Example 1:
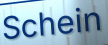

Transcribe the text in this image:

Schein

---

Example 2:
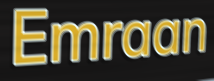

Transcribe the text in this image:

Emraan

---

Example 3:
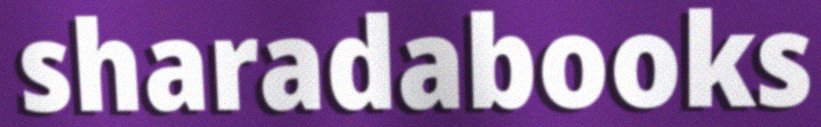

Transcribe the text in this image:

sharadabooks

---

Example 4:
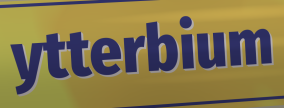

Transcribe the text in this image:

ytterbium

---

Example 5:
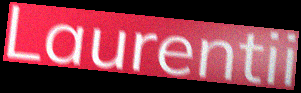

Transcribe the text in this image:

Laurentii